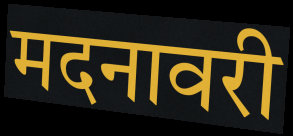
मदनावरी